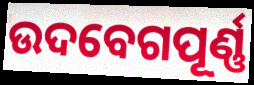
ଉଦବେଗପୂର୍ଣ୍ଣ